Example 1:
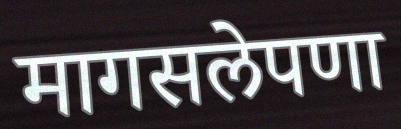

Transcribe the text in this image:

मागसलेपणा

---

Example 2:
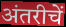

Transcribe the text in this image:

अंतरीचें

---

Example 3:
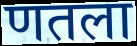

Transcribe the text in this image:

णतला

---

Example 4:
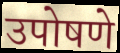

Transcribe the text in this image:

उपोषणे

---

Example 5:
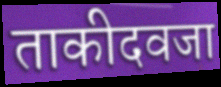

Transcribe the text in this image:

ताकीदवजा